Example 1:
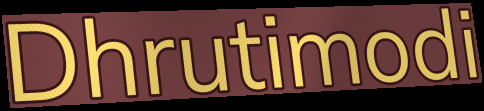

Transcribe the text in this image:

Dhrutimodi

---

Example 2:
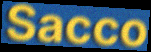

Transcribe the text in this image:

Sacco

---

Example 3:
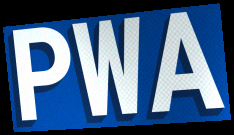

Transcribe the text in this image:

PWA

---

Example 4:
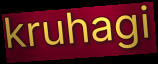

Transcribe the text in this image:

kruhagi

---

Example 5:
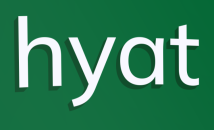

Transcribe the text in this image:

hyat